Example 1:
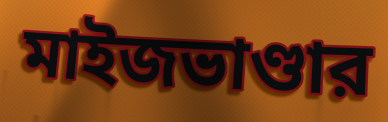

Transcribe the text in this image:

মাইজভাণ্ডার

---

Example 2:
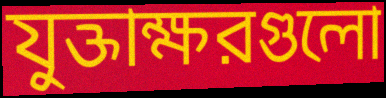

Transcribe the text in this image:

যুক্তাক্ষরগুলো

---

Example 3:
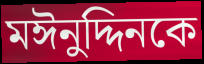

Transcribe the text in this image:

মঈনুদ্দিনকে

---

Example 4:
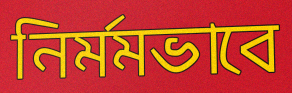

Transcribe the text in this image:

নির্মমভাবে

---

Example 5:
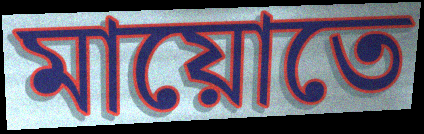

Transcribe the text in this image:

মায়োতে